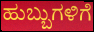
ಹುಬ್ಬುಗಳಿಗೆ